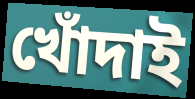
খোঁদাই